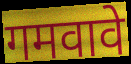
गमवावे